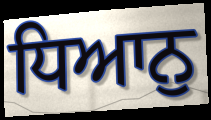
ਧਿਆਨੁ